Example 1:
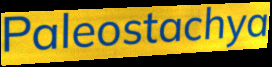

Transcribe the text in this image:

Paleostachya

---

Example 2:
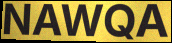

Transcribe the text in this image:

NAWQA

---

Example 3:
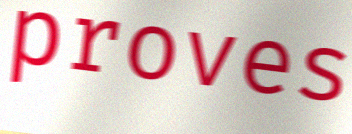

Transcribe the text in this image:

proves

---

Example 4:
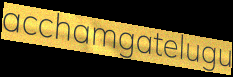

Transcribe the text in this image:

acchamgatelugu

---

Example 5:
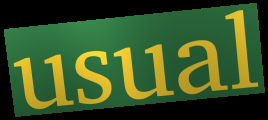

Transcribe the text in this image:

usual